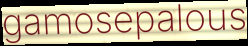
gamosepalous